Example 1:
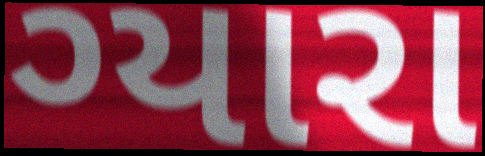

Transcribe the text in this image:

ગ્યારા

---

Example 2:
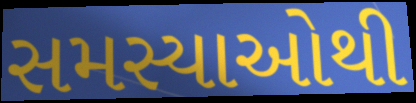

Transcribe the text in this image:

સમસ્યાઓથી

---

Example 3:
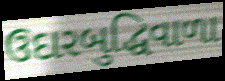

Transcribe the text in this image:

ઉદારબુદ્ધિવાળા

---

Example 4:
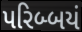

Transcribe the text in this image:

પરિબ્બયં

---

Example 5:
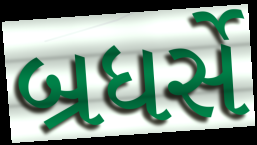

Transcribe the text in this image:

બ્રધર્સે